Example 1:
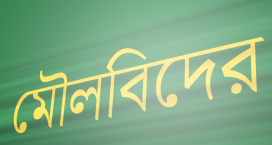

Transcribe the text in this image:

মৌলবিদের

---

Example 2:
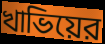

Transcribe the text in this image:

খাভিয়ের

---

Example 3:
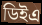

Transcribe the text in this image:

ডিইএ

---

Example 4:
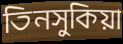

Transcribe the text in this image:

তিনসুকিয়া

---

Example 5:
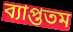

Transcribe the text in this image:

ব্যাপ্ততম